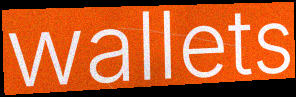
wallets